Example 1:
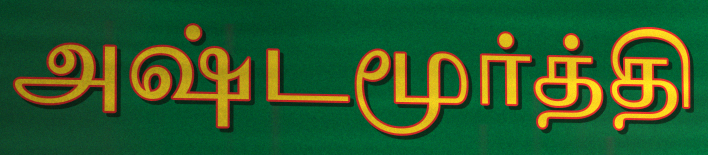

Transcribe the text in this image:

அஷ்டமூர்த்தி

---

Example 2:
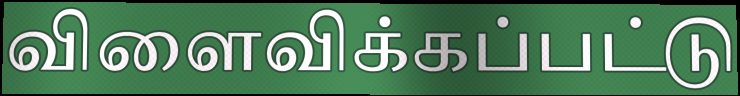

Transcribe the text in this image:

விளைவிக்கப்பட்டு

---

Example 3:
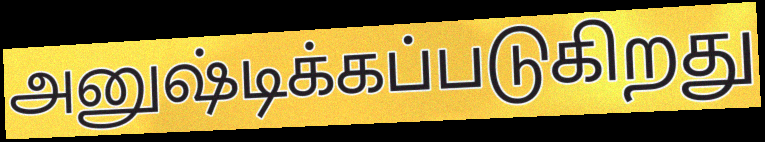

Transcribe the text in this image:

அனுஷ்டிக்கப்படுகிறது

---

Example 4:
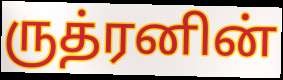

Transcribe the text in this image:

ருத்ரனின்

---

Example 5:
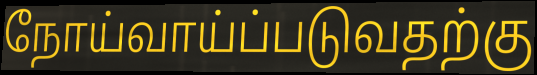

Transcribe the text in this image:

நோய்வாய்ப்படுவதற்கு